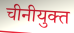
चीनीयुक्त